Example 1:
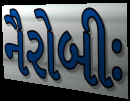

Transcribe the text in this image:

નૈરોબીઃ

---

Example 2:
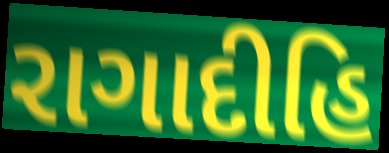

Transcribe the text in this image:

રાગાદીહિ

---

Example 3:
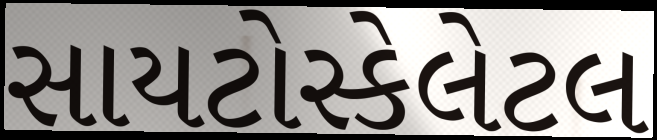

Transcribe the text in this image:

સાયટોસ્કેલેટલ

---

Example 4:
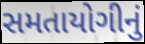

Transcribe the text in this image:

સમતાયોગીનું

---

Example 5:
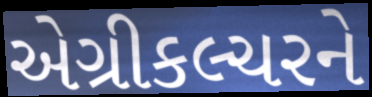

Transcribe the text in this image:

એગ્રીકલ્ચરને